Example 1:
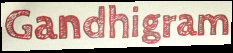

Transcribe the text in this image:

Gandhigram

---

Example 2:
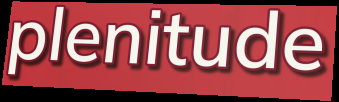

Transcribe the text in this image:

plenitude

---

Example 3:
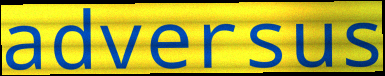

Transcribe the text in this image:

adversus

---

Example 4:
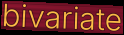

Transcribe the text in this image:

bivariate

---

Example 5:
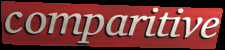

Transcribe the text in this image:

comparitive